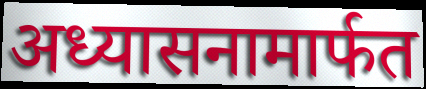
अध्यासनामार्फत